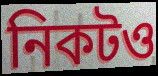
নিকটও